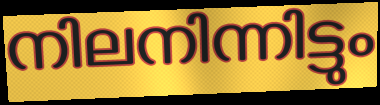
നിലനിന്നിട്ടും